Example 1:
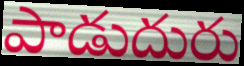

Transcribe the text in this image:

పాడుదురు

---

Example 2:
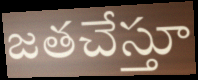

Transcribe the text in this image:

జతచేస్తూ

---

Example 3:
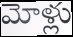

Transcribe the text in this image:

మోళ్లు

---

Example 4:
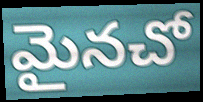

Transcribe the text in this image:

మైనచో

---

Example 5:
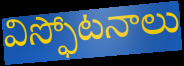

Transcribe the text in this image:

విస్ఫోటనాలు